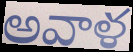
అవాళ